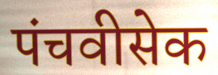
पंचवीसेक